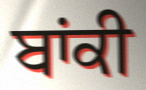
ਬਾਂਕੀ